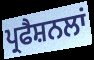
ਪ੍ਰਫੈਸ਼ਨਲਾਂ